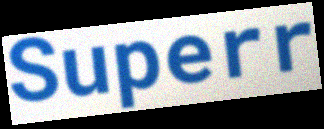
Superr